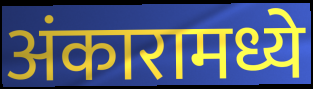
अंकारामध्ये